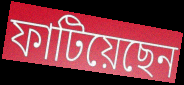
ফাটিয়েছেন